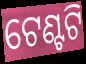
ଟେଣ୍ଟଟି